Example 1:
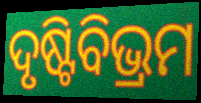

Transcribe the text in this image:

ଦୃଷ୍ଟିବିଭ୍ରମ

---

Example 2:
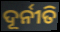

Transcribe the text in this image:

ଦୂର୍ନୀତି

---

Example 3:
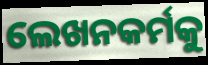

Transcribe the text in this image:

ଲେଖନକର୍ମକୁ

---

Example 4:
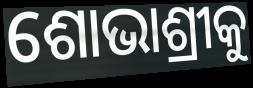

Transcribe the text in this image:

ଶୋଭାଶ୍ରୀକୁ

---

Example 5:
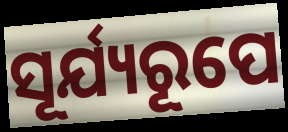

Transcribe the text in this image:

ସୂର୍ଯ୍ୟରୂପେ